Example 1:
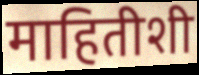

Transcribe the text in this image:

माहितीशी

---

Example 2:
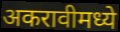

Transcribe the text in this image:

अकरावीमध्ये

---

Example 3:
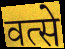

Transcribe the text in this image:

वत्से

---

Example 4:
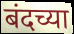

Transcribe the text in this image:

बंदच्या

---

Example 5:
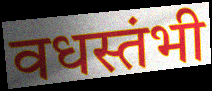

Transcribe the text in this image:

वधस्तंभी